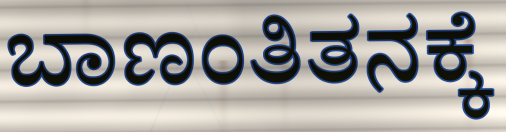
ಬಾಣಂತಿತನಕ್ಕೆ